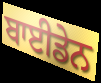
ਬਾਈਡੇਨ